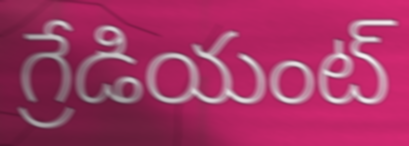
గ్రేడియంట్